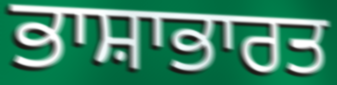
ਭਾਸ਼ਾਭਾਰਤ